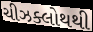
ચીઝક્લોથથી